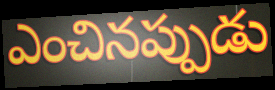
ఎంచినప్పుడు